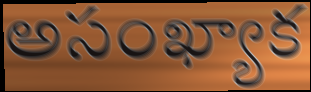
అసంఖ్యాక